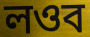
লওব